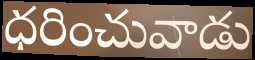
ధరించువాడు